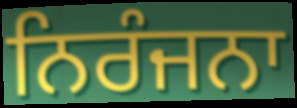
ਨਿਰੰਜਨਾ